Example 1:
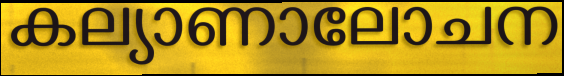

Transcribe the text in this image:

കല്യാണാലോചന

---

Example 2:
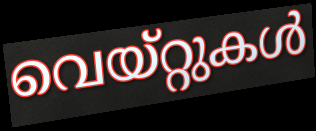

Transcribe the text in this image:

വെയ്റ്റുകൾ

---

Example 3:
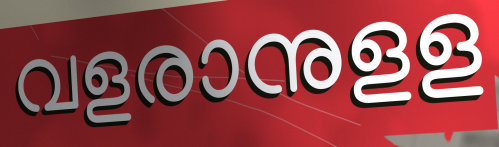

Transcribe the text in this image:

വളരാനുളള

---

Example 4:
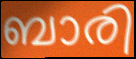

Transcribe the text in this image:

ബാരി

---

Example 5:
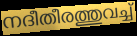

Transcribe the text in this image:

നദീതീരത്തുവച്ച്